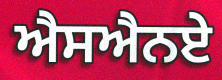
ਐਸਐਨਏ